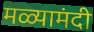
मळ्यामंदी